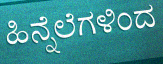
ಹಿನ್ನೆಲೆಗಳಿಂದ